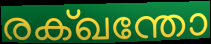
രക്ഖന്തോ